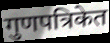
गुणपत्रिकेत